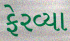
ફેરવ્યા